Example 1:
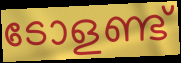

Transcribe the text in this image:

ടോളണ്ട്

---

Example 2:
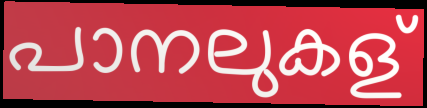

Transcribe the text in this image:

പാനലുകള്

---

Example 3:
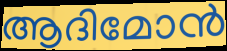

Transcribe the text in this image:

ആദിമോൻ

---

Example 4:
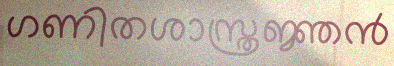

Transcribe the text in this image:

ഗണിതശാസ്ത്രജ്ഞൻ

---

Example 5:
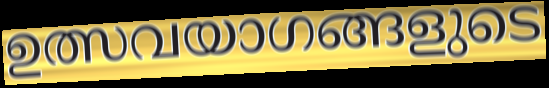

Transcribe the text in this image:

ഉത്സവയാഗങ്ങളുടെ